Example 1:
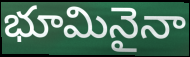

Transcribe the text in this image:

భూమినైనా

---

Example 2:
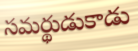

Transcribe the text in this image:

సమర్థుడుకాడు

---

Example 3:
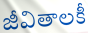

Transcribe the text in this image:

జీవితాలకీ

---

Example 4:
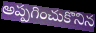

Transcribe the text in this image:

అప్పగించుకొనిన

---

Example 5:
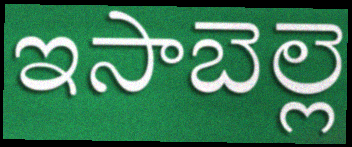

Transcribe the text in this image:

ఇసాబెల్లె